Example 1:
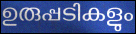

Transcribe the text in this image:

ഉരുപ്പടികളും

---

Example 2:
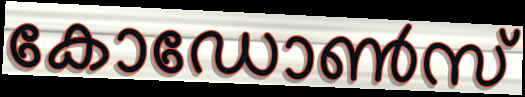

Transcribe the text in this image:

കോഡോൺസ്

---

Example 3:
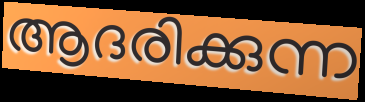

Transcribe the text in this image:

ആദരിക്കുന്ന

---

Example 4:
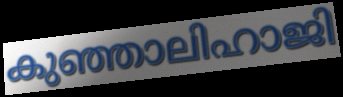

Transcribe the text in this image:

കുഞ്ഞാലിഹാജി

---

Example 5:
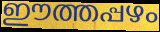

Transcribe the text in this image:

ഈത്തപ്പഴം